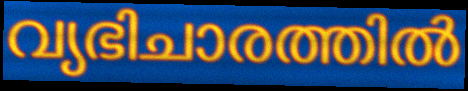
വ്യഭിചാരത്തിൽ